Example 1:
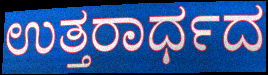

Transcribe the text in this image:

ಉತ್ತರಾರ್ಧದ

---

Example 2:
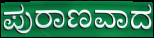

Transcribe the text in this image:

ಪುರಾಣವಾದ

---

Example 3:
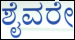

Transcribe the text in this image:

ಶೈವರೇ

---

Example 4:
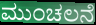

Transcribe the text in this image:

ಮುಂಚಲನೆ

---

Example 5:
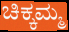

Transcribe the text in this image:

ಚಿಕ್ಕಮ್ಮ